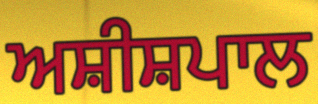
ਅਸ਼ੀਸ਼ਪਾਲ